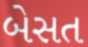
બેસત